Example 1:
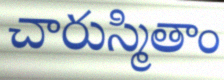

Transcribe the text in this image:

చారుస్మితాం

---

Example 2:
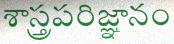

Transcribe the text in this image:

శాస్త్రపరిజ్ఞానం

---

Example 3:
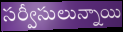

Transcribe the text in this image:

సర్వీసులున్నాయి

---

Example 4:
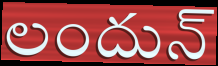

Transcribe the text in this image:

లందున్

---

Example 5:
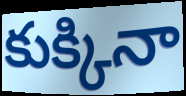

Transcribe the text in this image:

కుక్కినా